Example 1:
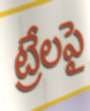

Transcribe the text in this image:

ట్రేలపై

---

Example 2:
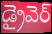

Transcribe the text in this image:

డ్రైవెర్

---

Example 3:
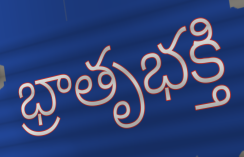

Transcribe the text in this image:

భ్రాతృభక్తి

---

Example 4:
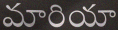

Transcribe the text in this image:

మారియా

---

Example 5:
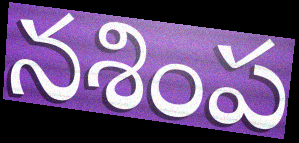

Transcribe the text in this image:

నశింప